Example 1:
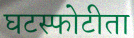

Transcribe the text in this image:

घटस्फोटीता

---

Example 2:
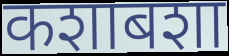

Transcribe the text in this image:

कशाबशा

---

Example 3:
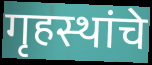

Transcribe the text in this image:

गृहस्थांचे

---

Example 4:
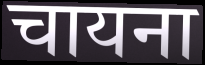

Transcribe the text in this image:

चायना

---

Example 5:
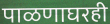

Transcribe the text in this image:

पाळणाघरही